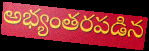
అభ్యంతరపడిన